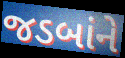
જડબાંને